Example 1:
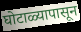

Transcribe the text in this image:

घोटाळ्यापासून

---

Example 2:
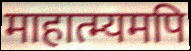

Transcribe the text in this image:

माहात्म्यमपि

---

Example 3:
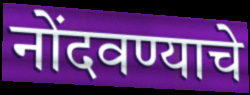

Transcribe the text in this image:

नोंदवण्याचे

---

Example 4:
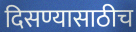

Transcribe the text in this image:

दिसण्यासाठीच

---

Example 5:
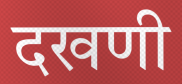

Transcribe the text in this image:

दखणी